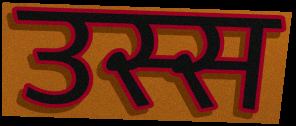
उस्स